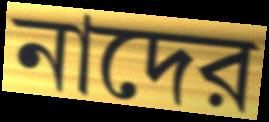
নাদের